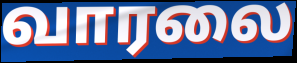
வாரலை